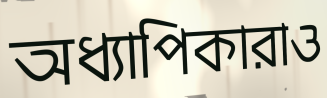
অধ্যাপিকারাও